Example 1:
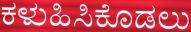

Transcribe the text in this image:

ಕಳುಹಿಸಿಕೊಡಲು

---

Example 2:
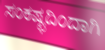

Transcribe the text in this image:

ಸಂಕಷ್ಟದಿಂದಾಗಿ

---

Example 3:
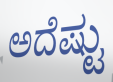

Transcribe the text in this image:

ಅದೆಷ್ಟು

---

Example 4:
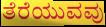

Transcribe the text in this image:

ತೆರೆಯುವವು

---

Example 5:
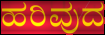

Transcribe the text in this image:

ಹರಿವುದ